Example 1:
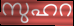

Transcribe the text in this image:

സുഹറ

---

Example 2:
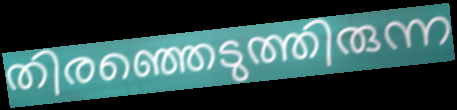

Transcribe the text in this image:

തിരഞ്ഞെടുത്തിരുന്ന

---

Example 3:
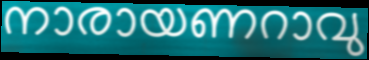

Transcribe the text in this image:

നാരായണറാവു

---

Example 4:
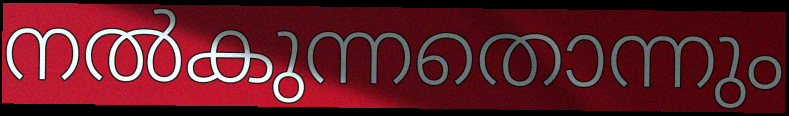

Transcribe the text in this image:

നൽകുന്നതൊന്നും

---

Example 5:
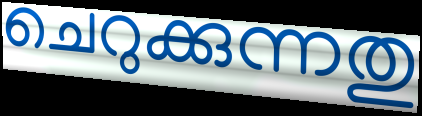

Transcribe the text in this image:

ചെറുക്കുന്നതു